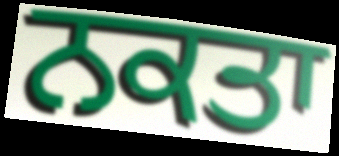
ਨਕਤਾ